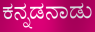
ಕನ್ನಡನಾಡು